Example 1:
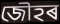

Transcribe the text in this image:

জৌহৰ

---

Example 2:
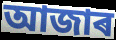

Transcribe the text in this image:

আজাৰ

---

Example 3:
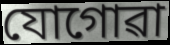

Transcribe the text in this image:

যোগোৱা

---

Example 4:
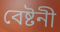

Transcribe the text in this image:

বেষ্টনী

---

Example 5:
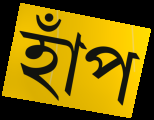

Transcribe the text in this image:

হাঁপ